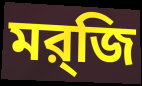
মর্‌জি